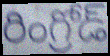
రింగ్రోడ్